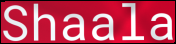
Shaala